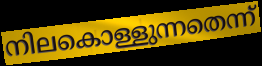
നിലകൊള്ളുന്നതെന്ന്